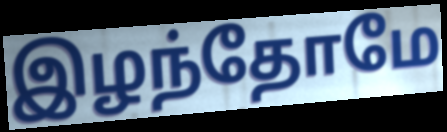
இழந்தோமே